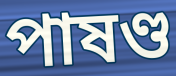
পাষণ্ড